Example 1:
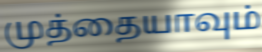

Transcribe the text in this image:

முத்தையாவும்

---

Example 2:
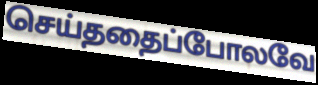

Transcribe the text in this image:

செய்ததைப்போலவே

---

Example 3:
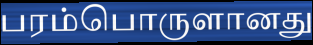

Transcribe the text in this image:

பரம்பொருளானது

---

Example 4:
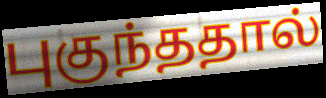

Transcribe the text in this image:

புகுந்ததால்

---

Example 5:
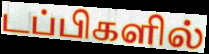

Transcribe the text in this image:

டப்பிகளில்